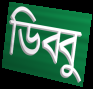
ডিব্বু